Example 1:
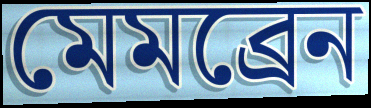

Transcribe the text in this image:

মেমব্রেন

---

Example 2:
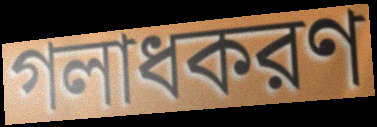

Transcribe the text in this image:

গলাধকরণ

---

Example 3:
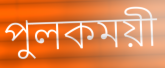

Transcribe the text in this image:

পুলকময়ী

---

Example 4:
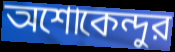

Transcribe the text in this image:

অশোকেন্দুর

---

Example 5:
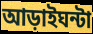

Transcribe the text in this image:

আড়াইঘন্টা